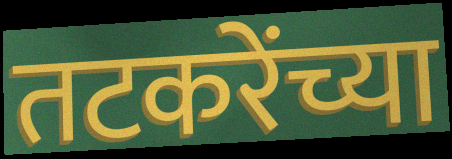
तटकरेंच्या